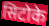
सिटोके